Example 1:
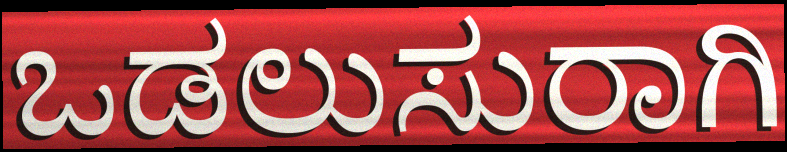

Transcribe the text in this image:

ಒಡಲುಸುರಾಗಿ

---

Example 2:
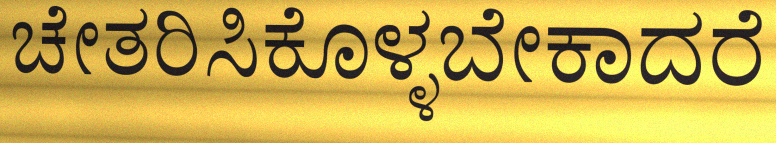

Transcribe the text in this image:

ಚೇತರಿಸಿಕೊಳ್ಳಬೇಕಾದರೆ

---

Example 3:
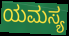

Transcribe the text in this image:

ಯಮಸ್ಯ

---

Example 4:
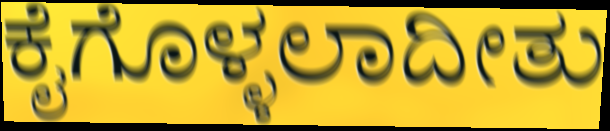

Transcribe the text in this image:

ಕೈಗೊಳ್ಳಲಾದೀತು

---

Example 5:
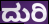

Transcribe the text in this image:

ದುರಿ